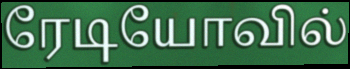
ரேடியோவில்